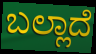
ಬಲ್ಲಾದೆ